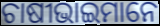
ଚାଷୀଭାଇମାନେ